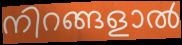
നിറങ്ങളാൽ